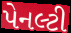
પેનલ્ટી